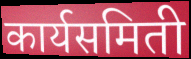
कार्यसमिती